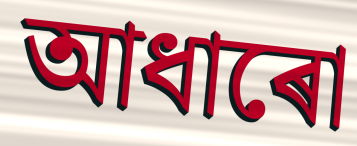
আধাৰো